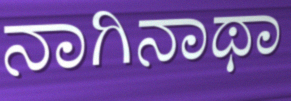
ನಾಗಿನಾಥಾ